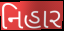
નિહાર